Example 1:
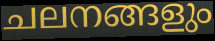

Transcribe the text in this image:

ചലനങ്ങളും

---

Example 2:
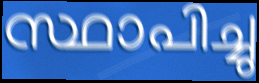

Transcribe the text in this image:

സ്ഥാപിച്ചു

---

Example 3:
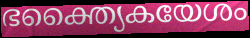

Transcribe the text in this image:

ഭക്ത്യൈകയേശം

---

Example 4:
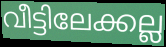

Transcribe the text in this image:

വീട്ടിലേക്കല്ല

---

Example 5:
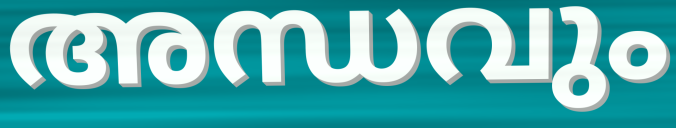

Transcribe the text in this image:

അന്ധവും